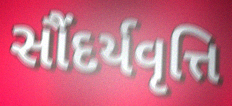
સૌંદર્યવૃત્તિ